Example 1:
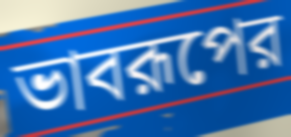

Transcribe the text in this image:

ভাবরূপের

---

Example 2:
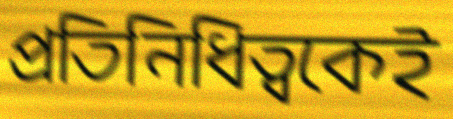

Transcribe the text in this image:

প্রতিনিধিত্বকেই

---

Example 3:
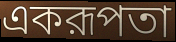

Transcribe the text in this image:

একরূপতা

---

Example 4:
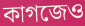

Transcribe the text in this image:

কাগজেও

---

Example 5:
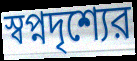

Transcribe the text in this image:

স্বপ্নদৃশ্যের